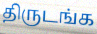
திருடங்க